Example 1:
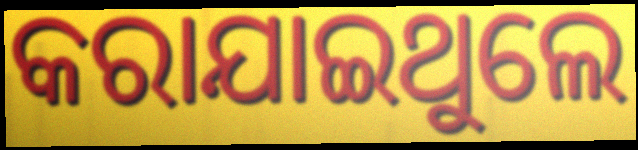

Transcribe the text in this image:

କରାଯାଇଥୁଲେ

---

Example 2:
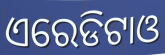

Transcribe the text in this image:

ଏରେଡିଟାଓ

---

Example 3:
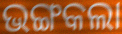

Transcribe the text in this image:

ଭଙ୍ଗକଲା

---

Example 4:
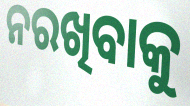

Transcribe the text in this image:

ନରଖିବାକୁ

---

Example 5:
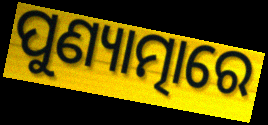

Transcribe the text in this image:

ପୁଣ୍ୟାତ୍ମାରେ